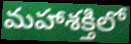
మహాశక్తిలో